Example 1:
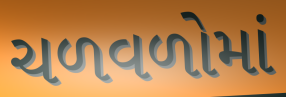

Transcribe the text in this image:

ચળવળોમાં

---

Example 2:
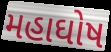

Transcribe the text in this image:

મહાઘોષ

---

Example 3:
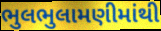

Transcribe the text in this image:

ભુલભુલામણીમાંથી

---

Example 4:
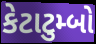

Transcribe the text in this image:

કેટાટુમ્બો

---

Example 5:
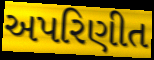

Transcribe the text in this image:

અપરિણીત